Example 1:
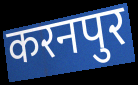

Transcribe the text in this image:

करनपुर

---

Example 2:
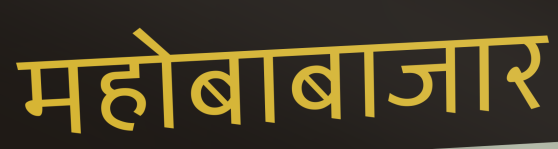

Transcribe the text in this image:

महोबाबाजार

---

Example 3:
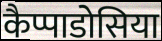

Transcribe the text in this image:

कैप्पाडोसिया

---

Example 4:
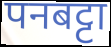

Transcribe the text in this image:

पनबट्टा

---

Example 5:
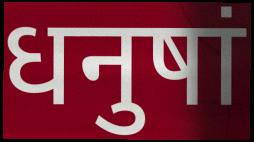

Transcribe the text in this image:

धनुषां